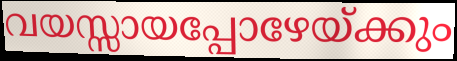
വയസ്സായപ്പോഴേയ്ക്കും